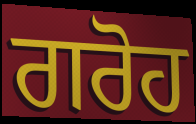
ਗਰੋਹ